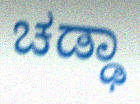
ಚಡ್ಢಾ